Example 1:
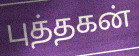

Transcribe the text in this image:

புத்தகன்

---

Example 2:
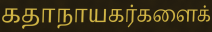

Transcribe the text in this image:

கதாநாயகர்களைக்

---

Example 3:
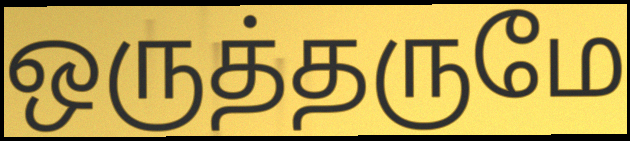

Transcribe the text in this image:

ஒருத்தருமே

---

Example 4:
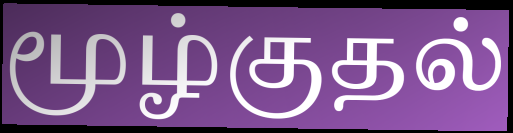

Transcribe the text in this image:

மூழ்குதல்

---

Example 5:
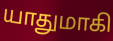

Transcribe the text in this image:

யாதுமாகி